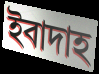
ইবাদাহ